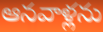
ఆనవాళ్లను